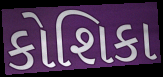
કોશિકા